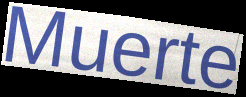
Muerte